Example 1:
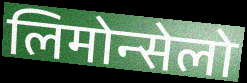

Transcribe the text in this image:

लिमोन्सेलो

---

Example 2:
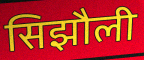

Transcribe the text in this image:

सिझौली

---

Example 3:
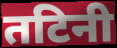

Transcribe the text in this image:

तटिनी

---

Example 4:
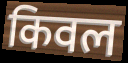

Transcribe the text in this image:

किवल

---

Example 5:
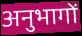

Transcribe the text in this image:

अनुभागों